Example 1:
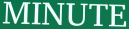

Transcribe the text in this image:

MINUTE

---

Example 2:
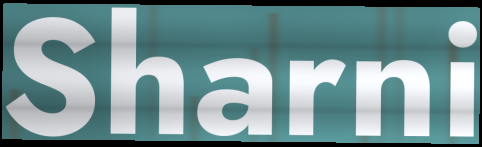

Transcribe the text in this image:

Sharni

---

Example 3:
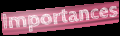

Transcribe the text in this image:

Importances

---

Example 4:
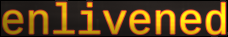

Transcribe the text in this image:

enlivened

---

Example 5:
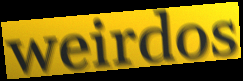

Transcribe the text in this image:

weirdos